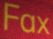
Fax